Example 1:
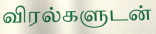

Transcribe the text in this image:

விரல்களுடன்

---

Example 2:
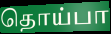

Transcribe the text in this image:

தொய்பா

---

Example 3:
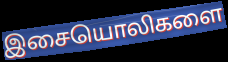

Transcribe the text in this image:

இசையொலிகளை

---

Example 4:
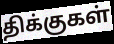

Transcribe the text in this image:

திக்குகள்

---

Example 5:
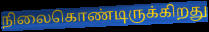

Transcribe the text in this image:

நிலைகொண்டிருக்கிறது